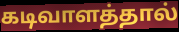
கடிவாளத்தால்